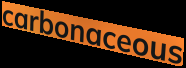
carbonaceous